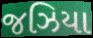
જઝિયા